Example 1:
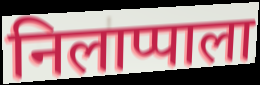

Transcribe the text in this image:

निलाप्पाला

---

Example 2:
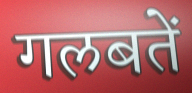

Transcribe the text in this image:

गलबतें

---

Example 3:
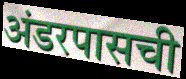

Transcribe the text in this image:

अंडरपासची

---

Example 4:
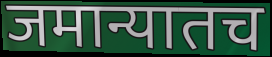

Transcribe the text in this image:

जमान्यातच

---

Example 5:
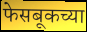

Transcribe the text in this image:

फेसबूकच्या